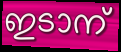
ഇടാന്